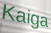
Kaiga